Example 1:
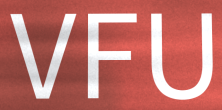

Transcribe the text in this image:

VFU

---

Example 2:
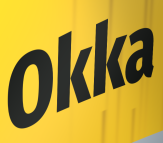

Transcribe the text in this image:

Okka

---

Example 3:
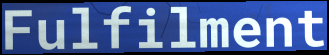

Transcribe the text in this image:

Fulfilment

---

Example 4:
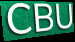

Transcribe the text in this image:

CBU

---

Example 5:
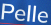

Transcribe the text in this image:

Pelle